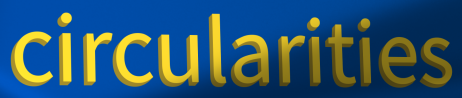
circularities